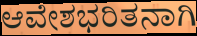
ಆವೇಶಭರಿತನಾಗಿ